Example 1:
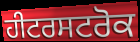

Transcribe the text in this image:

ਹੀਟਰਸਟਰੋਕ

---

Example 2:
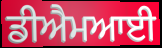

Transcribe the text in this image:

ਡੀਐਮਆਈ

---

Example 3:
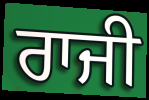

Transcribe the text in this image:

ਰਾਜੀ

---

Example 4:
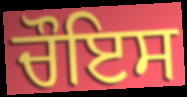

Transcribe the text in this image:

ਚੌਇਸ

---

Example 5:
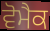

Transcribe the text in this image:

ਵੋਮੈਕ